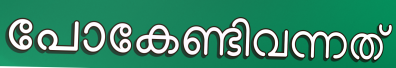
പോകേണ്ടിവന്നത്